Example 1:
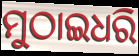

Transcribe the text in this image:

ମୁଠାଇଧରି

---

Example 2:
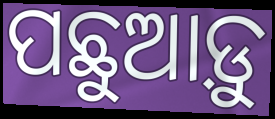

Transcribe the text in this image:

ପଛୁଆଡ଼ୁ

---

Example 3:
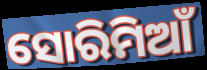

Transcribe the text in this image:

ସୋରିମିଆଁ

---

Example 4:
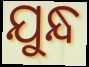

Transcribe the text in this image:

ଯୁନ୍ଧ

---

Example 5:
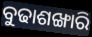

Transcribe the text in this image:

ବୁଢାଶଙ୍ଖାରି